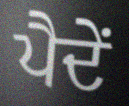
ਪੈਦੇਂ